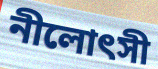
নীলোৎসী